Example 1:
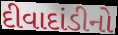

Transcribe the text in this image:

દીવાદાંડીનો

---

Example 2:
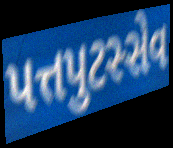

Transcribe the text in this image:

પત્તપુટસ્સેવ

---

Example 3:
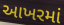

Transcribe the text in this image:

આખરમાં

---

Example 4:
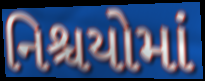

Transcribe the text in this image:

નિશ્ચયોમાં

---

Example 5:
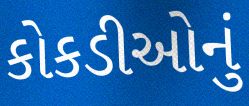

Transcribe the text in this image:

કોકડીઓનું